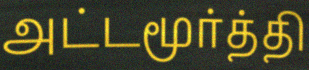
அட்டமூர்த்தி